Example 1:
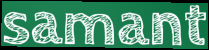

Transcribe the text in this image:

samant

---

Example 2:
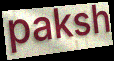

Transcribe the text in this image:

paksh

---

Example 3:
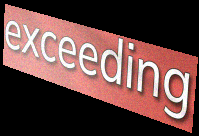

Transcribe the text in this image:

exceeding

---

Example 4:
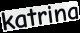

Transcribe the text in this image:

katrina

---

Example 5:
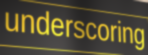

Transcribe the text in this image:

underscoring